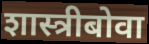
शास्त्रीबोवा